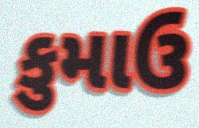
કુમાઉ